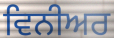
ਵਿਨੀਅਰ